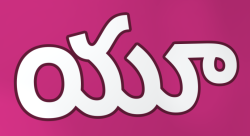
యూ